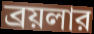
ব্রয়লার